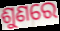
ଶୁଣରେ